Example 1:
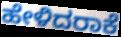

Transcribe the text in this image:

ಹೇಳಿದರಾಕೆ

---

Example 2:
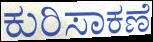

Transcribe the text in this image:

ಕುರಿಸಾಕಣೆ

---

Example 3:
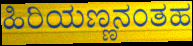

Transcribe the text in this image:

ಹಿರಿಯಣ್ಣನಂತಹ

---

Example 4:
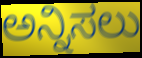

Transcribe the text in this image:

ಅನ್ನಿಸಲು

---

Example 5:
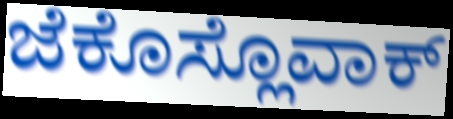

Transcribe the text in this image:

ಜೆಕೊಸ್ಲೊವಾಕ್